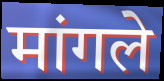
मांगले